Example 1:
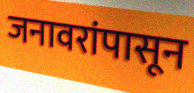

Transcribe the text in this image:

जनावरांपासून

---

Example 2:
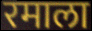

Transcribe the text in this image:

रमाला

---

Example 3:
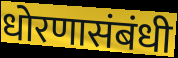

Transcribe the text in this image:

धोरणासंबंधी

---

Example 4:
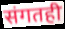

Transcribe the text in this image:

संगतही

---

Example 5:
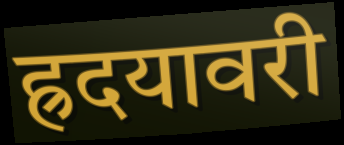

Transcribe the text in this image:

ह्रदयावरी